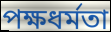
পক্ষধর্মতা